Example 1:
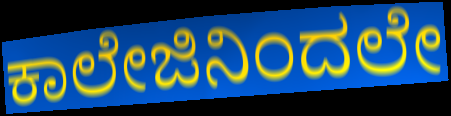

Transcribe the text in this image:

ಕಾಲೇಜಿನಿಂದಲೇ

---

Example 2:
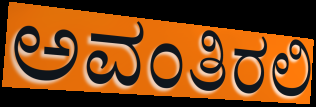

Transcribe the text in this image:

ಅವಂತಿರಲಿ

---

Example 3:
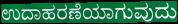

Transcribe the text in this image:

ಉದಾಹರಣೆಯಾಗುವುದು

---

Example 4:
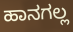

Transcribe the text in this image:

ಹಾನಗಲ್ಲ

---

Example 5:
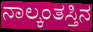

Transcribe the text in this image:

ನಾಲ್ಕಂತಸ್ತಿನ